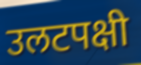
उलटपक्षी